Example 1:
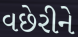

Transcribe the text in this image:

વછેરીને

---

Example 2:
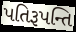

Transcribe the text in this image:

પતિરૂપન્તિ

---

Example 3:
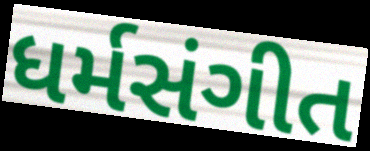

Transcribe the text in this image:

ધર્મસંગીત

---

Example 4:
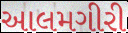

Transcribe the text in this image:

આલમગીરી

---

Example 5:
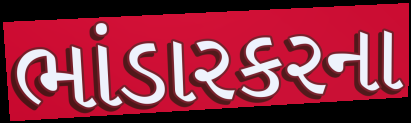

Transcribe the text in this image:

ભાંડારકરના